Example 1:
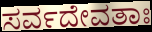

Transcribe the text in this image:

ಸರ್ವದೇವತಾಃ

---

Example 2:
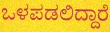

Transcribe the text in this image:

ಒಳಪಡಲಿದ್ದಾರೆ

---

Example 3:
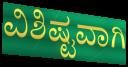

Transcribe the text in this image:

ವಿಶಿಷ್ಟವಾಗಿ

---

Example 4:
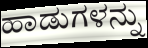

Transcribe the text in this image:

ಹಾಡುಗಳನ್ನು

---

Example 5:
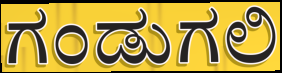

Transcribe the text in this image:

ಗಂಡುಗಲಿ